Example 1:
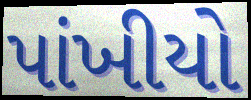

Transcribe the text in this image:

પાંખીયો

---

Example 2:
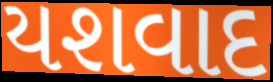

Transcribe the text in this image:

યશવાદ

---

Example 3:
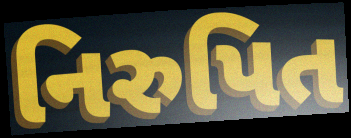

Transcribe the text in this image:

નિરુપિત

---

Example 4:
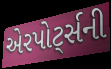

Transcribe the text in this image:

એરપોર્ટ્સની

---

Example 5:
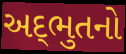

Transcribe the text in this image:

અદ્‌ભુતનો